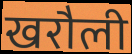
खरौली